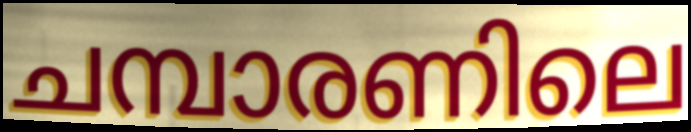
ചമ്പാരണിലെ